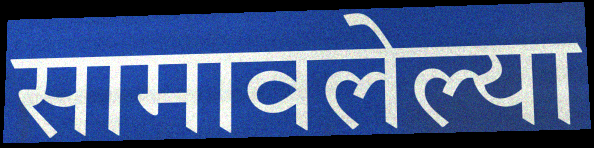
सामावलेल्या